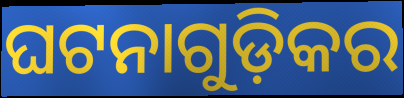
ଘଟନାଗୁଡ଼ିକର